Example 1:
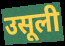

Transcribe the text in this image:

उसूली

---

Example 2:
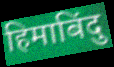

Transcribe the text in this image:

हिमाबिंदु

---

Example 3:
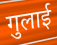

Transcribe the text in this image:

गुलाई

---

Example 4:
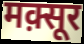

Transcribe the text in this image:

मक़्सूर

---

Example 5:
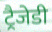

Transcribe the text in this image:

ट्रैजेडी